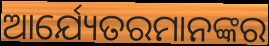
ଆର୍ଯ୍ୟେତରମାନଙ୍କର